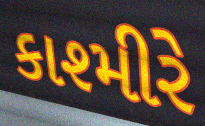
કાશ્મીરે